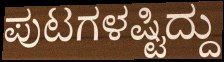
ಪುಟಗಳಷ್ಟಿದ್ದು